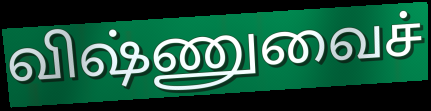
விஷ்ணுவைச்